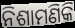
ନିଶାମଣିକି